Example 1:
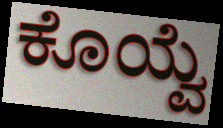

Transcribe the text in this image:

ಕೊಯ್ವೆ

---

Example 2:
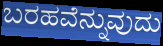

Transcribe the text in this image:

ಬರಹವೆನ್ನುವುದು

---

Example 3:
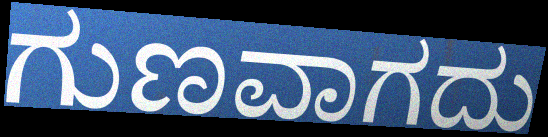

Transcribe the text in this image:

ಗುಣವಾಗದು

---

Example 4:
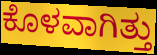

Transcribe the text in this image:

ಕೊಳವಾಗಿತ್ತು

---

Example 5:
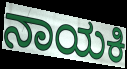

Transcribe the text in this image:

ನಾಯಕಿ